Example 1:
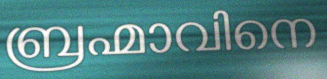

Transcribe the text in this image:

ബ്രഹ്മാവിനെ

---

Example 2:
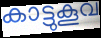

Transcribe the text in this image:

കാട്ടുകൂവ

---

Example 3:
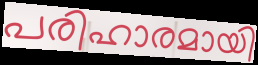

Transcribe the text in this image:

പരിഹാരമായി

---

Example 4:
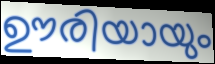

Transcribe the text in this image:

ഊരിയായും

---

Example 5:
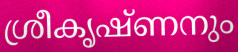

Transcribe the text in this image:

ശ്രീകൃഷ്ണനും